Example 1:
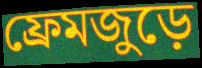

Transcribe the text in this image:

ফ্রেমজুড়ে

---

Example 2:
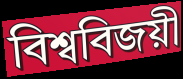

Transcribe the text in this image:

বিশ্ববিজয়ী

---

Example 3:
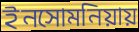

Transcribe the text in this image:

ইনসোমনিয়ায়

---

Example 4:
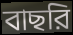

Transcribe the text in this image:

বাছরি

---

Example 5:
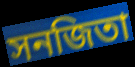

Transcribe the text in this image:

সনজিতা